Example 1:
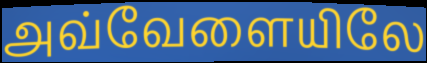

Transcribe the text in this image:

அவ்வேளையிலே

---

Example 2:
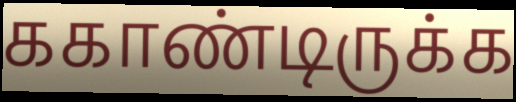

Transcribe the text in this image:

ககாண்டிருக்க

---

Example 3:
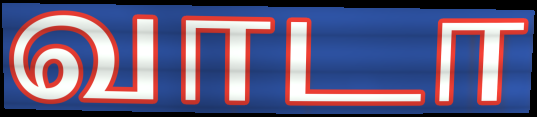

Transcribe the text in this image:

வாடா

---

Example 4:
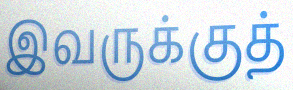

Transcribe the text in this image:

இவருக்குத்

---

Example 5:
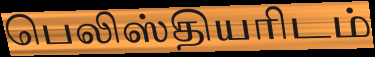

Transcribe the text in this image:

பெலிஸ்தியரிடம்